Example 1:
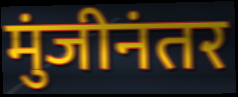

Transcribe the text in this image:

मुंजीनंतर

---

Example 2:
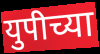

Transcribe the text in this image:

युपीच्या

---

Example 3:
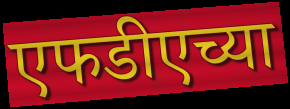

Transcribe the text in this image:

एफडीएच्या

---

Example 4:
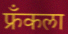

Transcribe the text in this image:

फ्रॅंकला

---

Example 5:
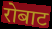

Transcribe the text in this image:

रोबाट